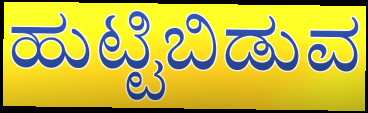
ಹುಟ್ಟಿಬಿಡುವ